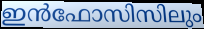
ഇൻഫോസിസിലും